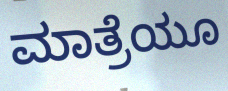
ಮಾತ್ರೆಯೂ